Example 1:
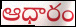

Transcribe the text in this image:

ఆధారం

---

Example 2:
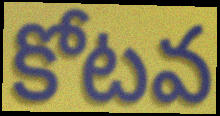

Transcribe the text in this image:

కోటవ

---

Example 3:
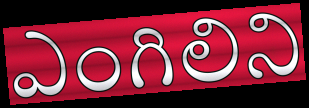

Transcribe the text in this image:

ఎంగిలిని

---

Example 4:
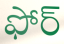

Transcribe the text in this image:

ఫోర్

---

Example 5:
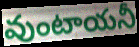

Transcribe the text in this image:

వుంటాయనీ